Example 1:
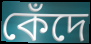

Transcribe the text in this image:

কেঁদে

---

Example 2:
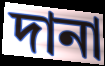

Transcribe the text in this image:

দানা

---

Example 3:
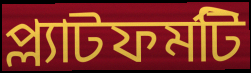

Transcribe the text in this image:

প্ল্যাটফর্মটি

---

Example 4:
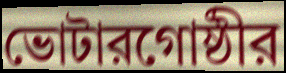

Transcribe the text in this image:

ভোটারগোষ্ঠীর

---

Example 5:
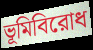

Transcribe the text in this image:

ভূমিবিরোধ